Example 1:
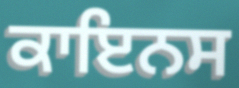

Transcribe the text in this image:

ਕਾਇਨਸ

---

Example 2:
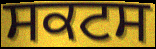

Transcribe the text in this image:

ਸਕਟਸ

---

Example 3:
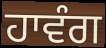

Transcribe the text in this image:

ਹਾਵੰਗ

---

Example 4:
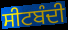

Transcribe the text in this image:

ਸੀਟਬੰਦੀ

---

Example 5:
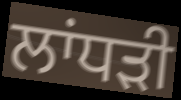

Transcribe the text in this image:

ਲਾਂਧੜੀ